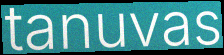
tanuvas